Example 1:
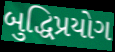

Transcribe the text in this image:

બુદ્ધિપ્રયોગ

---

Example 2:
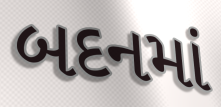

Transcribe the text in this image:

બદનમાં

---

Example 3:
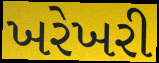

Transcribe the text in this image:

ખરેખરી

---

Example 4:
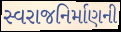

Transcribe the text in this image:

સ્વરાજનિર્માણની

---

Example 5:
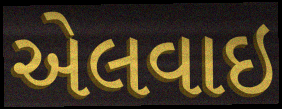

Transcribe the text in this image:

એલવાઇ